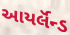
આયર્લૅન્ડ